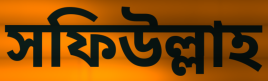
সফিউল্লাহ